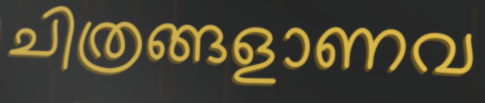
ചിത്രങ്ങളാണവ